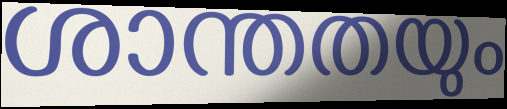
ശാന്തതയും